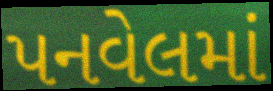
પનવેલમાં